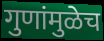
गुणांमुळेच